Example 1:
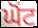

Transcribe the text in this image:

ਘੋਂਟ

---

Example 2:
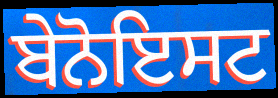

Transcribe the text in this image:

ਬੇਨੋਇਸਟ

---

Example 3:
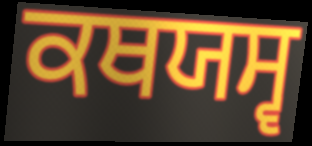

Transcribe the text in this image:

ਕਥਯਸ੍ਵ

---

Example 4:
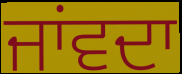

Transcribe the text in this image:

ਜਾਂਵਦਾ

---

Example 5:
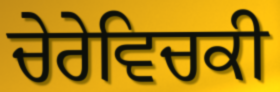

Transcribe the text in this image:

ਚੇਰੇਵਿਚਕੀ